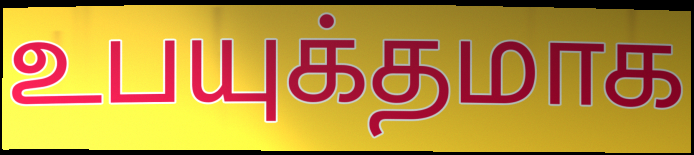
உபயுக்தமாக